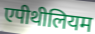
एपीथीलियम